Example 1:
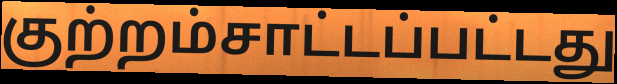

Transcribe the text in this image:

குற்றம்சாட்டப்பட்டது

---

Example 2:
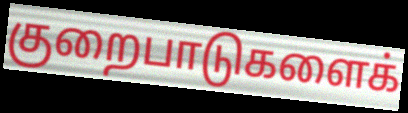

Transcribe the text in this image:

குறைபாடுகளைக்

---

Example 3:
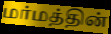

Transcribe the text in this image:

மர்மத்தின்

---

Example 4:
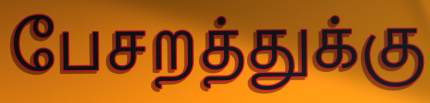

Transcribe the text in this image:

பேசறத்துக்கு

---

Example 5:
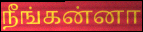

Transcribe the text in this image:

நீங்கன்னா